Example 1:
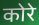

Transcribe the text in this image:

कोरे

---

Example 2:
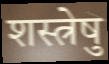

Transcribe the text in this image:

शस्त्रेषु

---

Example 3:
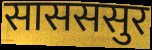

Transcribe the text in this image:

सासससुर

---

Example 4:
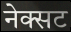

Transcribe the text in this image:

नेक्सट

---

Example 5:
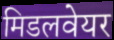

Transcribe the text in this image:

मिडलवेयर